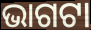
ଭାଗଟା